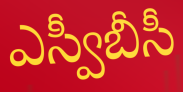
ఎస్వీబీసీ